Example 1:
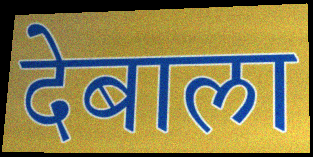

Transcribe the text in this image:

देबाला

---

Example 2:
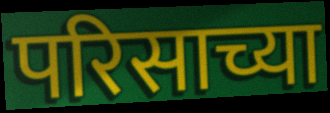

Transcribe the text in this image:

परिसाच्या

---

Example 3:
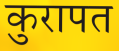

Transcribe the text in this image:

कुरापत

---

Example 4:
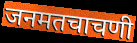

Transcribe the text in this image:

जनमतचाचणी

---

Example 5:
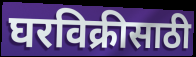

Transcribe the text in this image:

घरविक्रीसाठी